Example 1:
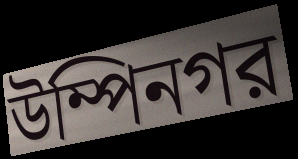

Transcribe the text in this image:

উম্পিনগর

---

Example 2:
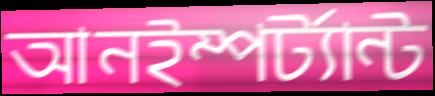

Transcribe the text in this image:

আনইম্পর্ট্যান্ট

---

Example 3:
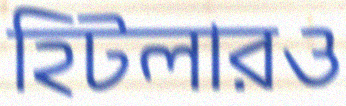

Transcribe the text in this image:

হিটলারও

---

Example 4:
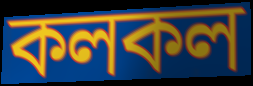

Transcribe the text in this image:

কলকল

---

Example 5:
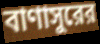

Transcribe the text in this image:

বাণাসুরের